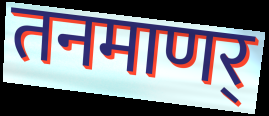
तनमाणर्